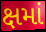
ક્ષમાં